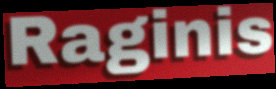
Raginis